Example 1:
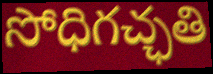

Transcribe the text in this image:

సోధిగచ్ఛతి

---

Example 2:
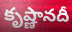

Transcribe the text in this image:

కృష్ణానదీ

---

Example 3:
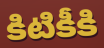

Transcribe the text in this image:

కిటికీకి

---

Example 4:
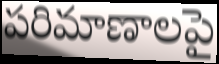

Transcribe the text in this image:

పరిమాణాలపై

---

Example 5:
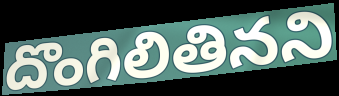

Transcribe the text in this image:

దొంగిలితినని